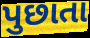
પુછાતા